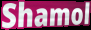
Shamol